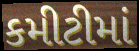
કમીટીમાં